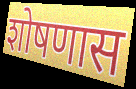
शोषणास